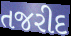
તજરીદ